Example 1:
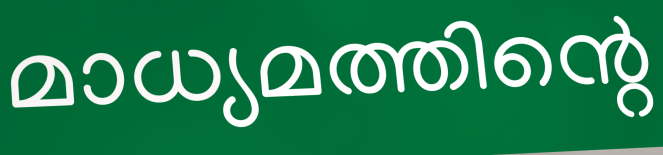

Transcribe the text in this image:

മാധ്യമത്തിന്റെ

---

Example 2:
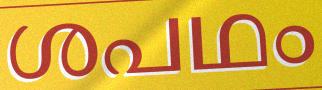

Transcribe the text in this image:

ശപഥം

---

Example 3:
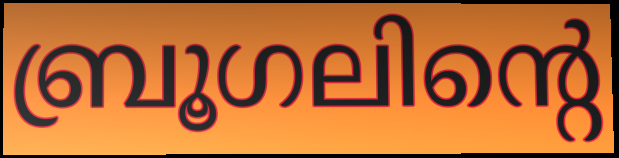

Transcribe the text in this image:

ബ്രൂഗലിന്റെ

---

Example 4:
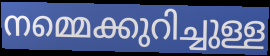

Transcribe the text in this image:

നമ്മെക്കുറിച്ചുള്ള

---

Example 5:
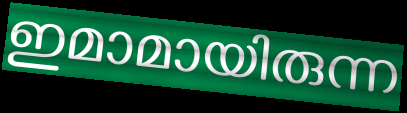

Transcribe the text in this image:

ഇമാമായിരുന്ന